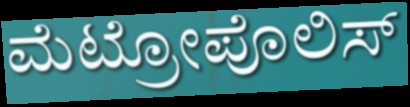
ಮೆಟ್ರೋಪೊಲಿಸ್